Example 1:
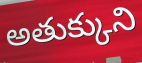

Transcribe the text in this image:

అతుక్కుని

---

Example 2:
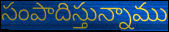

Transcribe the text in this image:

సంపాదిస్తున్నాము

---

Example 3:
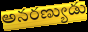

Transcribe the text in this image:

అనరణ్యుడు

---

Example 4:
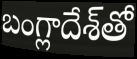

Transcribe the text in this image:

బంగ్లాదేశ్‌తో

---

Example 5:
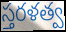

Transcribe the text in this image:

స్తరళత్వ